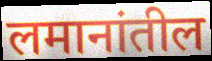
लमानांतील